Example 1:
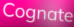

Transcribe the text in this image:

Cognate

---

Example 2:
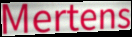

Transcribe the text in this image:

Mertens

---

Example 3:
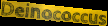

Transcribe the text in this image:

Deinococcus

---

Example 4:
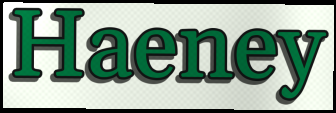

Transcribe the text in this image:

Haeney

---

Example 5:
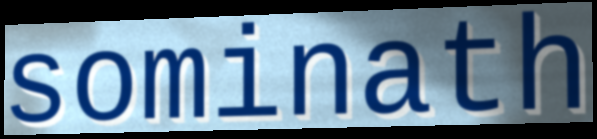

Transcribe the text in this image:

sominath